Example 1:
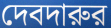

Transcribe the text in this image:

দেবদারুর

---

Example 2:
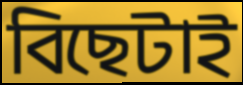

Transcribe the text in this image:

বিছেটাই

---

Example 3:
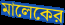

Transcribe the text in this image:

মালেকের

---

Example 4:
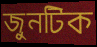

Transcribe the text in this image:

জুনটিক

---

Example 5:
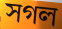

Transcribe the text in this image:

সগল